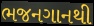
ભજનગાનથી